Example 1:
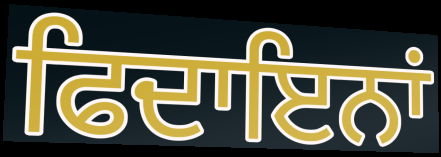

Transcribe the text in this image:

ਫਿਦਾਇਨਾਂ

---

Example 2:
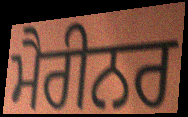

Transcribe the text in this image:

ਮੈਰੀਨਰ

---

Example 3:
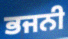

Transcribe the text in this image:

ਭਜਨੀ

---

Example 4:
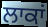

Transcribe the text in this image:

ਲਾਕਾਂ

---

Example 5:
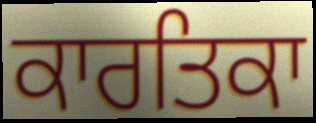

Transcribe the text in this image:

ਕਾਰਤਿਕਾ